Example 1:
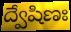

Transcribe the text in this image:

ద్వేషిణః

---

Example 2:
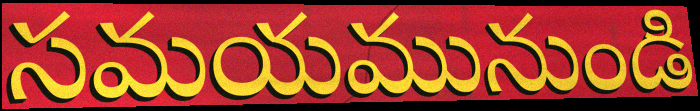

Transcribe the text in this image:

సమయమునుండి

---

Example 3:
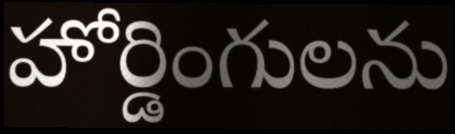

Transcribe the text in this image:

హోర్డింగులను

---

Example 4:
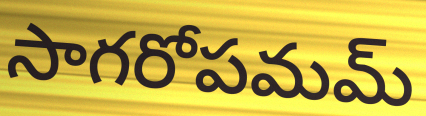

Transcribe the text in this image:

సాగరోపమమ్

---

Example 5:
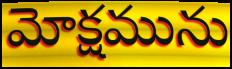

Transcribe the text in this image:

మోక్షమును